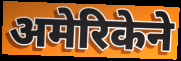
अमेरिकेने